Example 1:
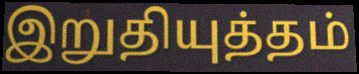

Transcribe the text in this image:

இறுதியுத்தம்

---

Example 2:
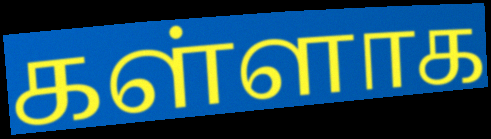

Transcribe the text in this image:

கள்ளாக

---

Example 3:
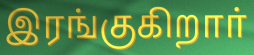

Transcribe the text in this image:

இரங்குகிறார்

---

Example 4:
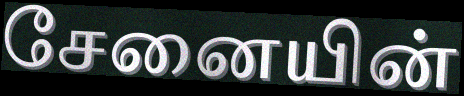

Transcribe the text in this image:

சேனையின்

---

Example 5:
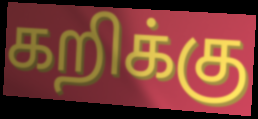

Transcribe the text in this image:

கறிக்கு